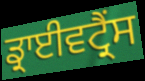
ਡ੍ਰਾਈਵਟ੍ਰੈਂਸ